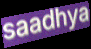
saadhya